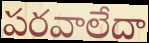
పరవాలేదా